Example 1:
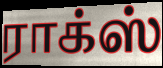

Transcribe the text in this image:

ராக்ஸ்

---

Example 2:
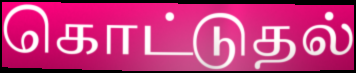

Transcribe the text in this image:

கொட்டுதல்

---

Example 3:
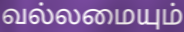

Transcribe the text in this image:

வல்லமையும்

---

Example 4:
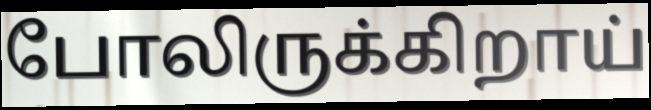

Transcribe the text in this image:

போலிருக்கிறாய்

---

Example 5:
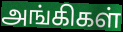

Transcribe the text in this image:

அங்கிகள்